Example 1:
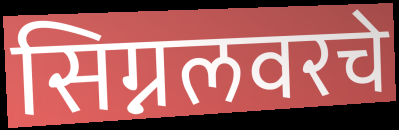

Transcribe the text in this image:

सिग्नलवरचे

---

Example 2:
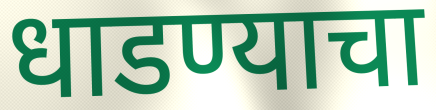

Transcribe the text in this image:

धाडण्याचा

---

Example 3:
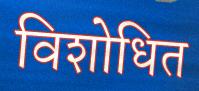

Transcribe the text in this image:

विशोधित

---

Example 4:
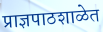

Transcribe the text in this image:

प्राज्ञपाठशाळेत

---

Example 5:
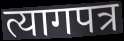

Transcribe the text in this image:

त्यागपत्र